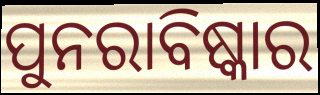
ପୁନରାବିଷ୍କାର